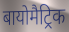
बायोमैट्रिक